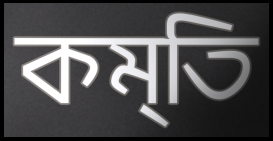
কম্‌তি